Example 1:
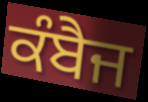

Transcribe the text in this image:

ਕੰਬੈਜ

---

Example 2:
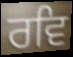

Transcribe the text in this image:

ਰਵਿ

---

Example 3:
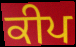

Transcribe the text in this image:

ਕੀਪ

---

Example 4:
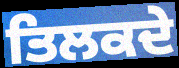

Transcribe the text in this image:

ਤਿਲਕਦੇ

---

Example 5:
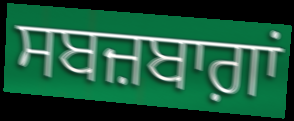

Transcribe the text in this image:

ਸਬਜ਼ਬਾਗ਼ਾਂ